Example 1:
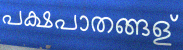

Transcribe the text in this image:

പക്ഷപാതങ്ങള്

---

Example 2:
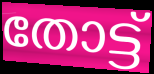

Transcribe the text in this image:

തോട്ട്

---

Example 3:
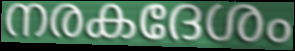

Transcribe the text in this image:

നരകദേശം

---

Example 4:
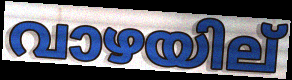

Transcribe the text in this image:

വാഴയില്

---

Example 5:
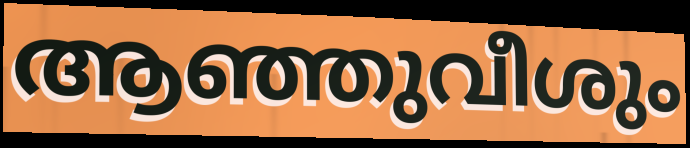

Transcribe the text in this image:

ആഞ്ഞുവീശും